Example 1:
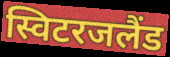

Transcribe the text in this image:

स्विटरजलैंड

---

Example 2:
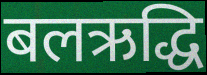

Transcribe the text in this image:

बलऋद्धि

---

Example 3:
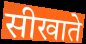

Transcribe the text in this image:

सीखाते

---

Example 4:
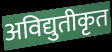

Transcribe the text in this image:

अविद्युतीकृत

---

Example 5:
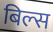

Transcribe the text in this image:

बिल्स